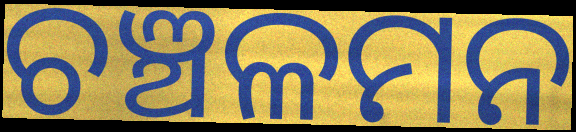
ଚଞ୍ଚଳମନ